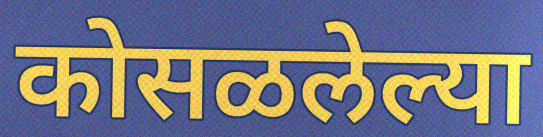
कोसळलेल्या